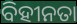
ବିହୀନତା